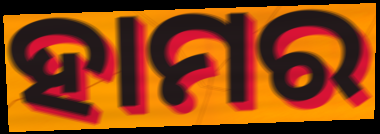
ହାମର